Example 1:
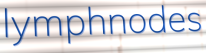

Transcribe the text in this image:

lymphnodes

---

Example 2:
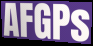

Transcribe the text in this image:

AFGPs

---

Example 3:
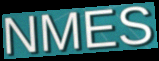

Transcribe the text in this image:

NMES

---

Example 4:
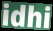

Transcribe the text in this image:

idhi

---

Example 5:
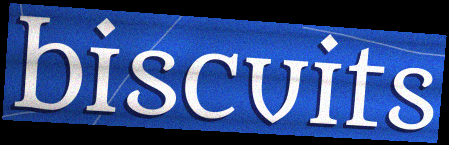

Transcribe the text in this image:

biscuits